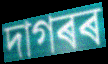
দাগৰৰ